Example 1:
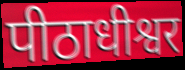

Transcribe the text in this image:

पीठाधीश्वर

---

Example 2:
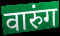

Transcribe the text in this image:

वारुंग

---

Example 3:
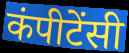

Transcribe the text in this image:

कंपीटेंसी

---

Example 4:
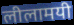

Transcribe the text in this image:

लीलामयी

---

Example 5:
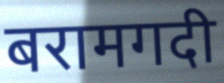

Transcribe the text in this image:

बरामगदी